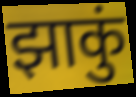
झाकुं